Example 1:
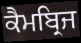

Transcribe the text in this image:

ਕੈਮਬ੍ਰਿਜ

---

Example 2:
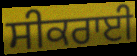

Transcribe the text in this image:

ਸੀਕਰਾਈ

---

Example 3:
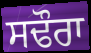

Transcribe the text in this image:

ਸਢੌਰਾ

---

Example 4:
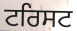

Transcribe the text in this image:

ਟਰਿਸਟ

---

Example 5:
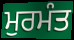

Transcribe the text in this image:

ਮੁਰਮੰਤ